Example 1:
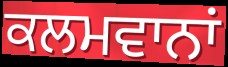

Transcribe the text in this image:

ਕਲਮਵਾਨਾਂ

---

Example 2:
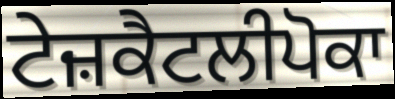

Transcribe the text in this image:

ਟੇਜ਼ਕੈਟਲੀਪੋਕਾ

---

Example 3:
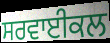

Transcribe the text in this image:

ਸਰਵਾਈਕਲ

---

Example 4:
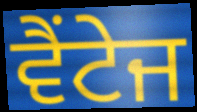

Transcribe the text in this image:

ਵੈਂਟੇਜ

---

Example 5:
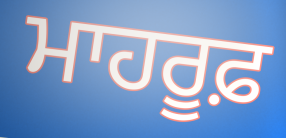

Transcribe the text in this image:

ਮਾਹਰੂਫ਼